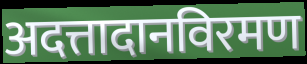
अदत्तादानविरमण